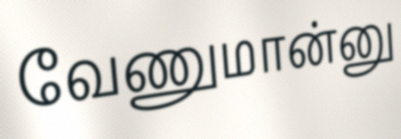
வேணுமான்னு